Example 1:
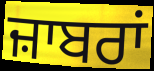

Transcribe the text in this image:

ਜ਼ਾਬਰਾਂ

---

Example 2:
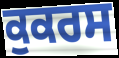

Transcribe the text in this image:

ਕੁਕਰਸ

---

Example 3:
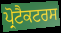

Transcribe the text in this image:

ਪ੍ਰੋਟੈਕਟਰਸ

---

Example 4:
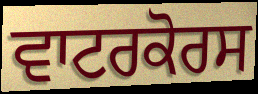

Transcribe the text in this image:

ਵਾਟਰਕੋਰਸ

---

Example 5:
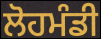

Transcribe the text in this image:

ਲੋਹਮੰਡੀ